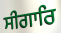
ਸੀਗਾਰਿ